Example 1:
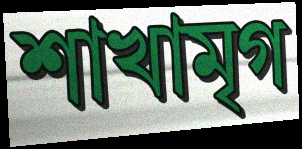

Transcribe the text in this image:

শাখামৃগ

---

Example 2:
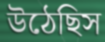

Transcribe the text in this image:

উঠেছিস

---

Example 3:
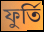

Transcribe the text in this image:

ফুর্তি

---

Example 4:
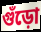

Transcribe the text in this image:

গুঁড়ো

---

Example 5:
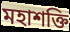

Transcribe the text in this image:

মহাশক্তি